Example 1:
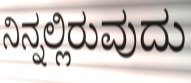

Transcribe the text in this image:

ನಿನ್ನಲ್ಲಿರುವುದು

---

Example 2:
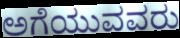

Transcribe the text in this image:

ಅಗೆಯುವವರು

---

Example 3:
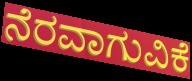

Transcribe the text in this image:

ನೆರವಾಗುವಿಕೆ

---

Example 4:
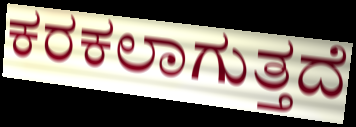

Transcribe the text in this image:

ಕರಕಲಾಗುತ್ತದೆ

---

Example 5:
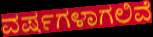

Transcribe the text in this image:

ವರ್ಷಗಳಾಗಲಿವೆ